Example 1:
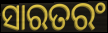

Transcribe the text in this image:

ସାରତରଂ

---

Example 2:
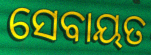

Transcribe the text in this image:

ସେବାୟତ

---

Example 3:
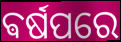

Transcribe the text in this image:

ଵର୍ଷପରେ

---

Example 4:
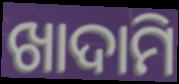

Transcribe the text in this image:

ଖାଦାମି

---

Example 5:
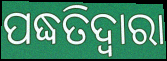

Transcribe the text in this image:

ପଦ୍ଧତିଦ୍ଵାରା